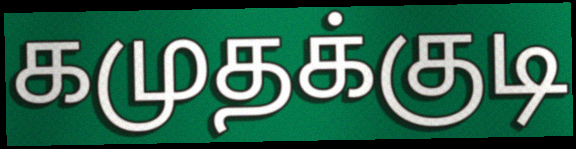
கமுதக்குடி